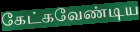
கேட்கவேண்டிய